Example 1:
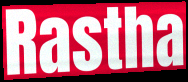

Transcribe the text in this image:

Rastha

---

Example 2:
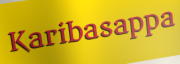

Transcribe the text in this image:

Karibasappa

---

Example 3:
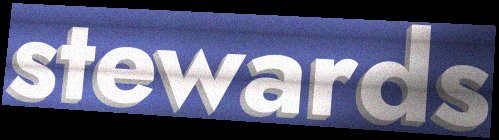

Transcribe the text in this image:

stewards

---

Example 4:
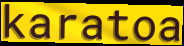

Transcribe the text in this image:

karatoa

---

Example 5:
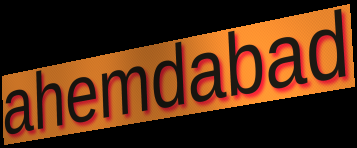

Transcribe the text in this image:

ahemdabad